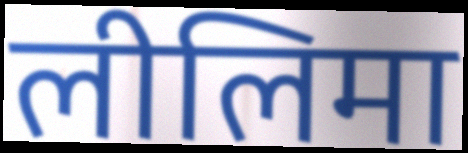
लीलिमा